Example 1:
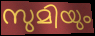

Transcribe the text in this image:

സുമിയും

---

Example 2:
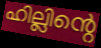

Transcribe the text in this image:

ഹില്ലിന്റെ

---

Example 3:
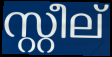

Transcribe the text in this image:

സ്റ്റീല്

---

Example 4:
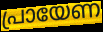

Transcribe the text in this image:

പ്രായേണ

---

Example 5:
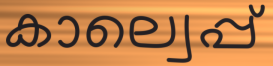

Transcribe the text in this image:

കാല്വെപ്പ്